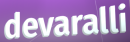
devaralli